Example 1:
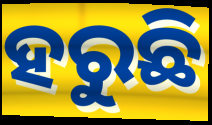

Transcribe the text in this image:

ହରୁଛି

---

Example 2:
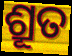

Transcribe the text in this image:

ଶ୍ରୂତ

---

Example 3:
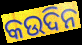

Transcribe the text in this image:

କଉଦିନ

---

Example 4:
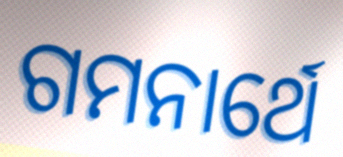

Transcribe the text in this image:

ଗମନାର୍ଥେ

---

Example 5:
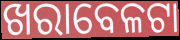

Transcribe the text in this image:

ଖରାବେଳଟା